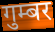
गुम्बर